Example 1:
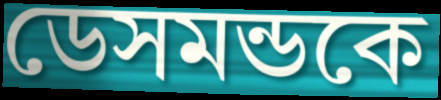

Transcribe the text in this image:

ডেসমন্ডকে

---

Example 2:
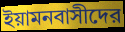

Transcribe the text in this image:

ইয়ামনবাসীদের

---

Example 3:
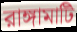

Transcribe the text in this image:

রাঙ্গামাটি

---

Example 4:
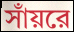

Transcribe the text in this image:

সাঁয়রে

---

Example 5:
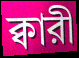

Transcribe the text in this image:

ক্বারী